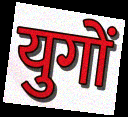
युगों